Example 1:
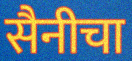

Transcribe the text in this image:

सैनीचा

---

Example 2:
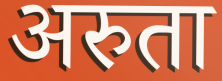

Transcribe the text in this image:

अरुता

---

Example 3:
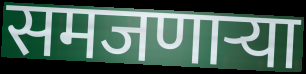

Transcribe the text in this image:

समजणाऱ्या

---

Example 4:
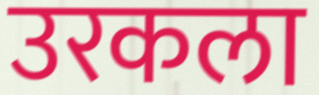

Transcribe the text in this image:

उरकला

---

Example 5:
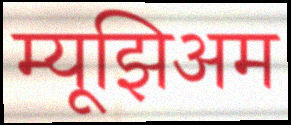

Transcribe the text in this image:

म्यूझिअम